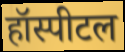
हॉस्पीटल